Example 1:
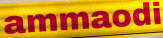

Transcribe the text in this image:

ammaodi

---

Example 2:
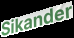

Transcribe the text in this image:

Sikander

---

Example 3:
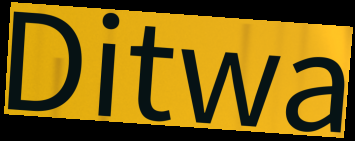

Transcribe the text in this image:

Ditwa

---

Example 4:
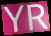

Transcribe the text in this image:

YR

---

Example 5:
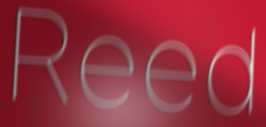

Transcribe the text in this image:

Reed